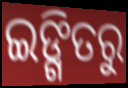
ଇଙ୍ଗିତରୁ